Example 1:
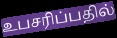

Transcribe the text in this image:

உபசரிப்பதில்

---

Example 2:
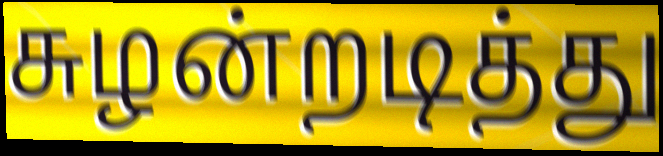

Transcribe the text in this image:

சுழன்றடித்து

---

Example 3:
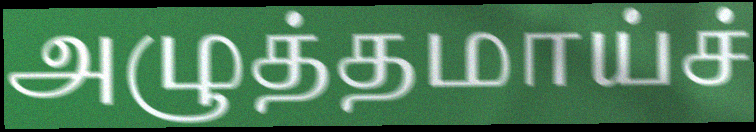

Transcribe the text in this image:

அழுத்தமாய்ச்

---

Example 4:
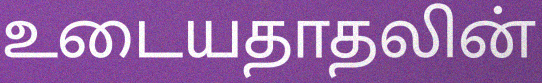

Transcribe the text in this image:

உடையதாதலின்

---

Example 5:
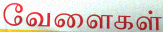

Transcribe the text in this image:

வேளைகள்